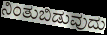
ನಿಂತುಬಿಡುವುದು